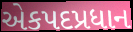
એકપદપ્રધાન